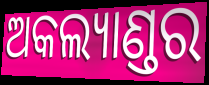
ଅକଲ୍ୟାଣ୍ଡର